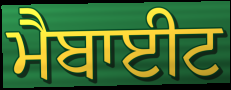
ਮੈਬਾਈਟ